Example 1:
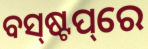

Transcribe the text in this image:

ବସ୍‌ଷ୍ଟପ୍‌ରେ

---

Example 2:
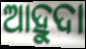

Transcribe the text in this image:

ଆହୁଦା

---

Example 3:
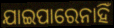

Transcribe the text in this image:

ଯାଇପାରେନାହିଁ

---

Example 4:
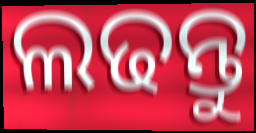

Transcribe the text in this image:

ଲଢନ୍ତୁ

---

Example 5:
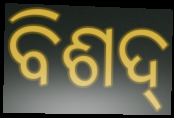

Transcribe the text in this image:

ବିଶଦ୍